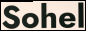
Sohel